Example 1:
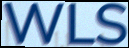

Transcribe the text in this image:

WLS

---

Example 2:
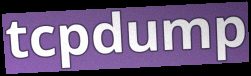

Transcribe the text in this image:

tcpdump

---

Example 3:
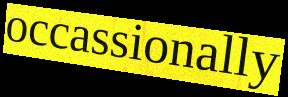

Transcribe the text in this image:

occassionally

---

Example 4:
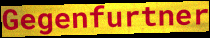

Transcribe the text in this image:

Gegenfurtner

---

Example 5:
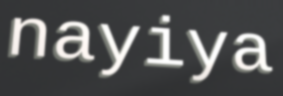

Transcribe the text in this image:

nayiya